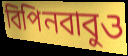
বিপিনবাবুও